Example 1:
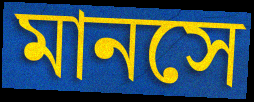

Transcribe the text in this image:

মানসে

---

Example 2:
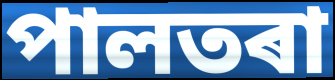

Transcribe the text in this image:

পালতৰা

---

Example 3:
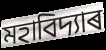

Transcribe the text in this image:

মহাবিদ্যাৰ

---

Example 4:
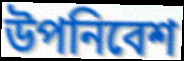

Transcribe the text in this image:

উপনিবেশ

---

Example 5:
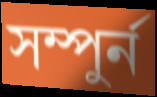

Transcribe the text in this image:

সম্পুৰ্ন